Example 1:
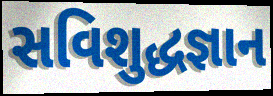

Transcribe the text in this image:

સવિશુદ્ધજ્ઞાન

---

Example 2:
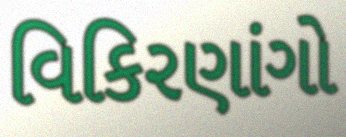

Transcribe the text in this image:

વિકિરણાંગો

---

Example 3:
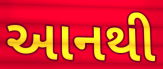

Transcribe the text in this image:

આનથી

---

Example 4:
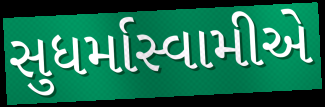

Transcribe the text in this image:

સુધર્માસ્વામીએ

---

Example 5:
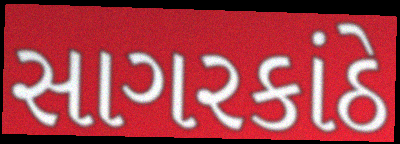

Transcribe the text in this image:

સાગરકાંઠે